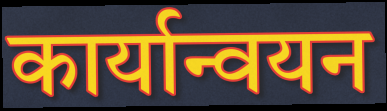
कार्यान्‍वयन